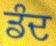
ਡੰਦ